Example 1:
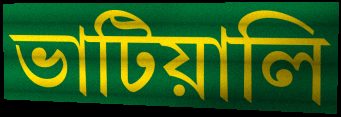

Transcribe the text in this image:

ভাটিয়ালি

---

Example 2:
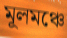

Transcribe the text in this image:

মূলমঞ্চে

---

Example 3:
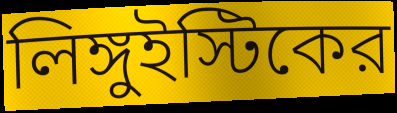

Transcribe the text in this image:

লিঙ্গুইস্টিকের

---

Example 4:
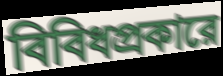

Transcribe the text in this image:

বিবিধপ্রকারে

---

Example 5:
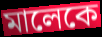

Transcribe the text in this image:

মালেকে